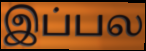
இப்பல